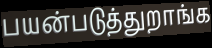
பயன்படுத்துறாங்க